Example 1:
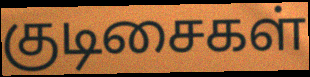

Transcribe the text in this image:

குடிசைகள்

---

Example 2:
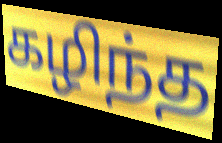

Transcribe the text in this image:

கழிந்த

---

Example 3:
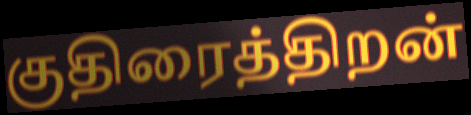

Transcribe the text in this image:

குதிரைத்திறன்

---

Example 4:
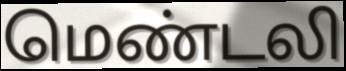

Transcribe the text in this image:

மெண்டலி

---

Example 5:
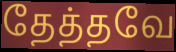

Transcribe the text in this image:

தேத்தவே